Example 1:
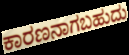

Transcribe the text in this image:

ಕಾರಣನಾಗಬಹುದು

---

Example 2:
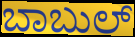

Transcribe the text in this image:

ಬಾಬುಲ್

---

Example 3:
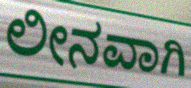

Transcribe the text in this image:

ಲೀನವಾಗಿ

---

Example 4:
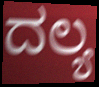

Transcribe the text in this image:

ದಲ್ಯ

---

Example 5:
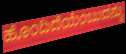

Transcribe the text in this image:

ಹೊಂದಿದೆಯೆಂಬುದನ್ನು